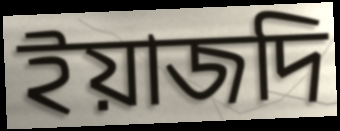
ইয়াজদি